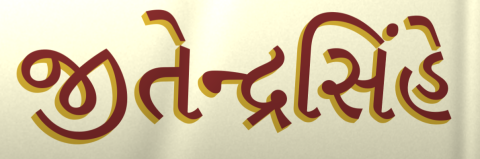
જીતેન્દ્રસિંહે